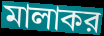
মালাকর